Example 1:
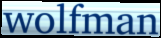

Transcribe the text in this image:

wolfman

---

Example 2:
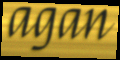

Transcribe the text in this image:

agan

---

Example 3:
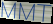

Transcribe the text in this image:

MMT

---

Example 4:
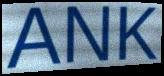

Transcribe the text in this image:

ANK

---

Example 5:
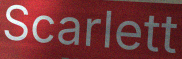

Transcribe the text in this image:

Scarlett